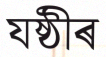
যষ্ঠীৰ